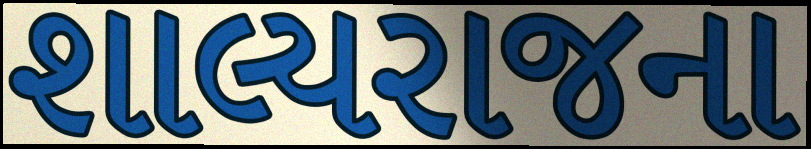
શાલ્યરાજના